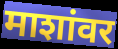
माशांवर